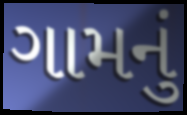
ગામનું